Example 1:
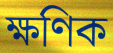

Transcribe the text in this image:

ক্ষণিক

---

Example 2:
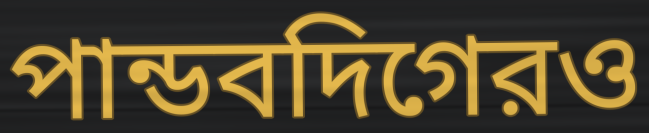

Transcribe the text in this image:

পান্ডবদিগেরও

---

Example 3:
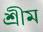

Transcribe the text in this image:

শ্রীম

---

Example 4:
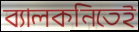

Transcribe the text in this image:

ব্যালকনিতেই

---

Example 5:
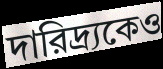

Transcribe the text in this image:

দারিদ্র্যকেও